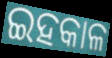
ଇହକାଳ